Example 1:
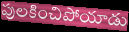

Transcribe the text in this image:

పులకించిపోయాడు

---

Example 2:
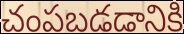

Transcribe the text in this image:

చంపబడడానికి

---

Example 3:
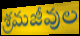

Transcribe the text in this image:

శ్రమజీవుల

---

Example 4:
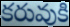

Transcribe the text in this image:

కరువుకి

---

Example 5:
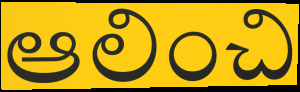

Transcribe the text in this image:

ఆలించి